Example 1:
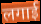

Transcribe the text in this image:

लगाई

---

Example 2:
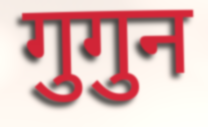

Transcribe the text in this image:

गुगुन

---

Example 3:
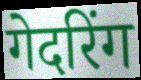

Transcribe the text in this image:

गेदरिंग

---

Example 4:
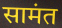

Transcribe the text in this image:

सामंत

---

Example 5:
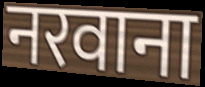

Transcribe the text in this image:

नरवाना